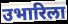
उभारिला